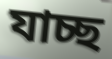
যাচ্ছ